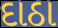
દાઠા